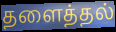
தளைத்தல்